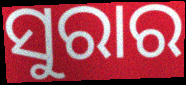
ସୁରାର